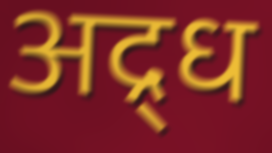
अद्र्ध